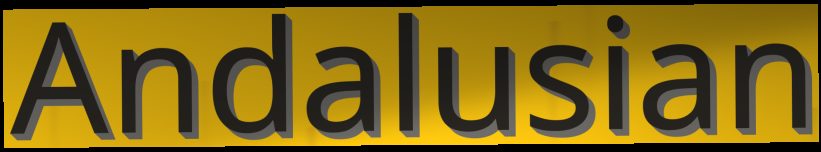
Andalusian